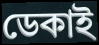
ডেকাই